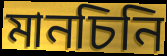
মানচিনি